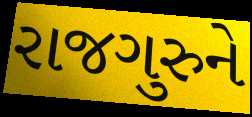
રાજગુરુને